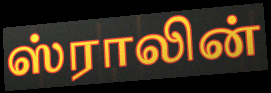
ஸ்ராலின்